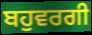
ਬਹੁਵਰਗੀ